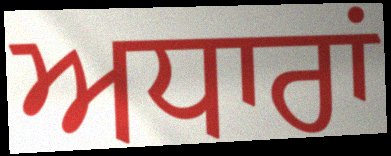
ਅਧਾਰਾਂ